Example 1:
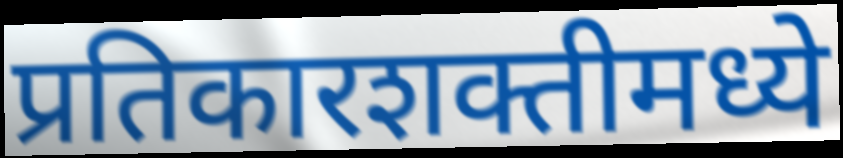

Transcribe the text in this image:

प्रतिकारशक्तीमध्ये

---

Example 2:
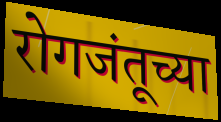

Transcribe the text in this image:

रोगजंतूच्या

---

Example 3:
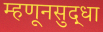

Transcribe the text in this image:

म्हणूनसुद्धा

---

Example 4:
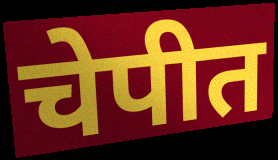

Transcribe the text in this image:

चेपीत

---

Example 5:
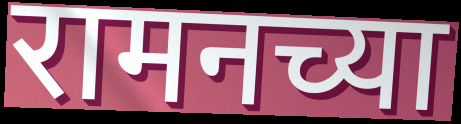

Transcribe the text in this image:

रामनच्या